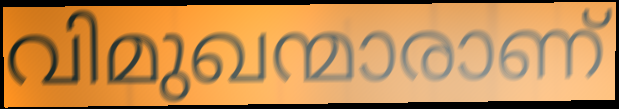
വിമുഖന്മാരാണ്